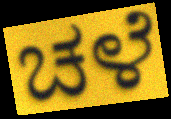
ಚಳೆ